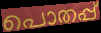
പൊതപ്പ്